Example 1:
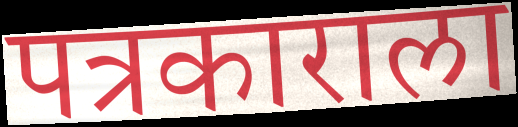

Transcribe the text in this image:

पत्रकाराला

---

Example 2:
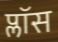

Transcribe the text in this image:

प्लॉस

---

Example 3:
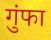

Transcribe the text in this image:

गुंफा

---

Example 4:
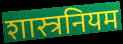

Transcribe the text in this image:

शास्त्रनियम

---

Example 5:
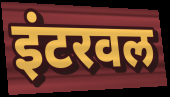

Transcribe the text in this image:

इंटरवल